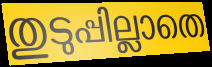
തുടുപ്പില്ലാതെ